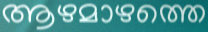
ആഴമാഴത്തെ